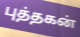
புத்தகன்